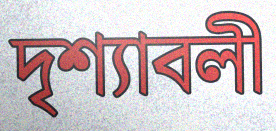
দৃশ্যাবলী